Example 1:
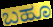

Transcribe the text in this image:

ಬಹೂ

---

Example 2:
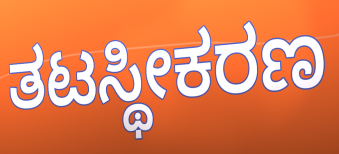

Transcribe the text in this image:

ತಟಸ್ಥೀಕರಣ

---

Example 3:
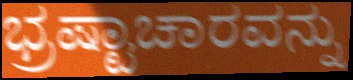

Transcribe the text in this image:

ಭ್ರಷ್ಟಾಚಾರವನ್ನು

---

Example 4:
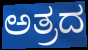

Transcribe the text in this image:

ಅತ್ರದ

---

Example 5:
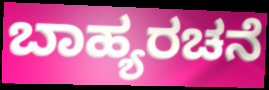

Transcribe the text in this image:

ಬಾಹ್ಯರಚನೆ